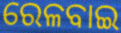
ରେଳବାଇ